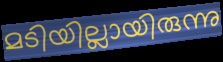
മടിയില്ലായിരുന്നു